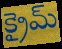
క్రైమ్